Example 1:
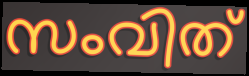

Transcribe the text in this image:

സംവിത്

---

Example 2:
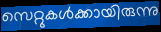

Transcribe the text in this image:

സെറ്റുകൾക്കായിരുന്നു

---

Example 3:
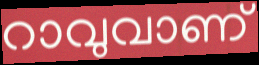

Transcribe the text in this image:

റാവുവാണ്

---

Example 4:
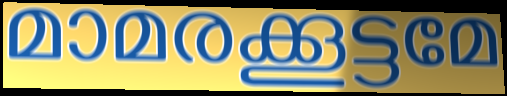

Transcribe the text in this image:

മാമരക്കൂട്ടമേ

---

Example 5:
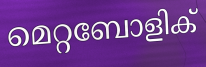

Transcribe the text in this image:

മെറ്റബോളിക്